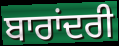
ਬਾਰਾਂਦਰੀ